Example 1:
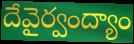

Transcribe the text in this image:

దేవైర్వంద్యాం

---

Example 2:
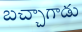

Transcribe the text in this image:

బచ్చాగాడు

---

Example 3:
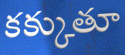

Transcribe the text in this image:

కక్కుతూ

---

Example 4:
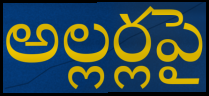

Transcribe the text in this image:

అల్లర్లపై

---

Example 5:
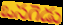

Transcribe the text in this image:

ఒసగెడు